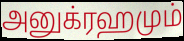
அனுக்ரஹமும்